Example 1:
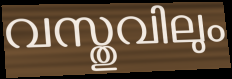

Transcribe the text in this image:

വസ്തുവിലും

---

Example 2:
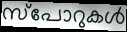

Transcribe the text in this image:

സ്പോറുകൾ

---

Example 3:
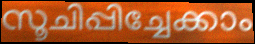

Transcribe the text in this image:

സൂചിപ്പിച്ചേക്കാം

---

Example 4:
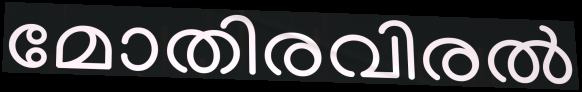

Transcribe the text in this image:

മോതിരവിരൽ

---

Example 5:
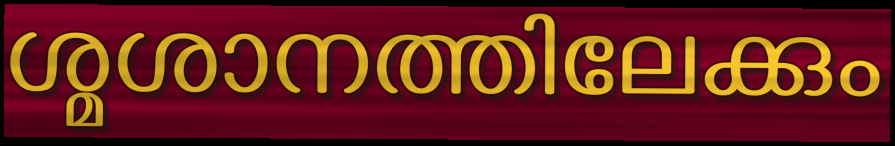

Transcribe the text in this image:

ശ്മശാനത്തിലേക്കും